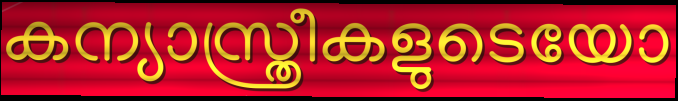
കന്യാസ്ത്രീകളുടെയോ